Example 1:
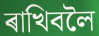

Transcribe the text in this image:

ৰাখিবলৈ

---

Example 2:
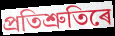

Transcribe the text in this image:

প্ৰতিশ্ৰুতিৰে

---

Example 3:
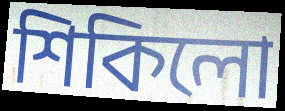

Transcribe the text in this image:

শিকিলো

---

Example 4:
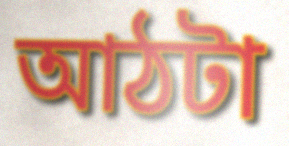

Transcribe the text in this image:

আঠটা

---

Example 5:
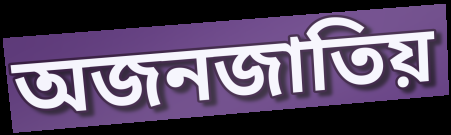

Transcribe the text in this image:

অজনজাতিয়